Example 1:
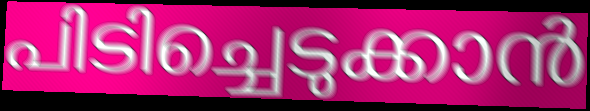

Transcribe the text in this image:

പിടിച്ചെടുക്കാൻ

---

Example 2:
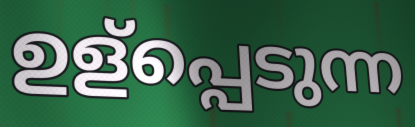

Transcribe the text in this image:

ഉള്പ്പെടുന്ന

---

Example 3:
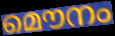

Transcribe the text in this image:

മൌനം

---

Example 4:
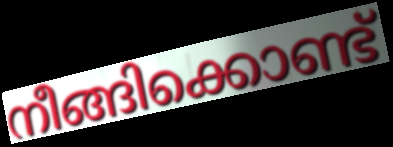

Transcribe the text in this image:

നീങ്ങിക്കൊണ്ട്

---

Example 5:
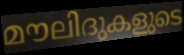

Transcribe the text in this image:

മൗലിദുകളുടെ